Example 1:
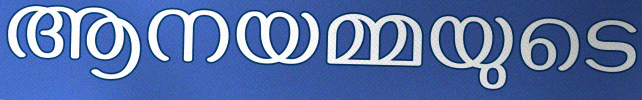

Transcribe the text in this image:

ആനയമ്മയുടെ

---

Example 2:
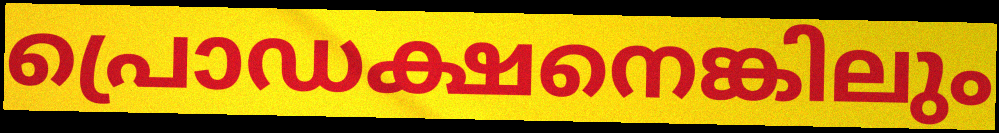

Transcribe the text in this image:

പ്രൊഡക്ഷനെങ്കിലും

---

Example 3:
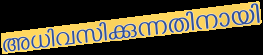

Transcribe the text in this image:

അധിവസിക്കുന്നതിനായി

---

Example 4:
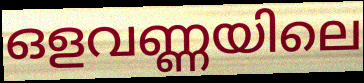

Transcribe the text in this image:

ഒളവണ്ണയിലെ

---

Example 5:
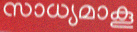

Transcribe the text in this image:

സാധ്യമാകൂ